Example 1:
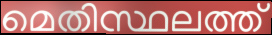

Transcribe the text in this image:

മെതിസ്ഥലത്ത്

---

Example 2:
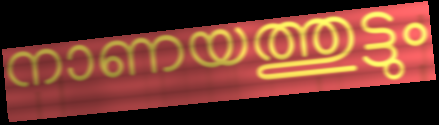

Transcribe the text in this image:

നാണയത്തുട്ടും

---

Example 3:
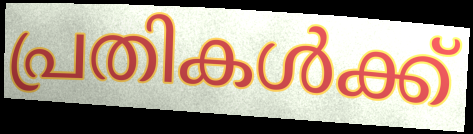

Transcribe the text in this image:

പ്രതികൾക്ക്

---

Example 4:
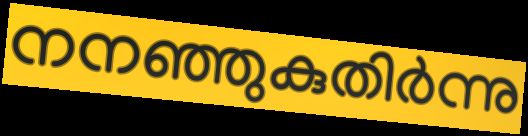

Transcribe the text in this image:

നനഞ്ഞുകുതിർന്നു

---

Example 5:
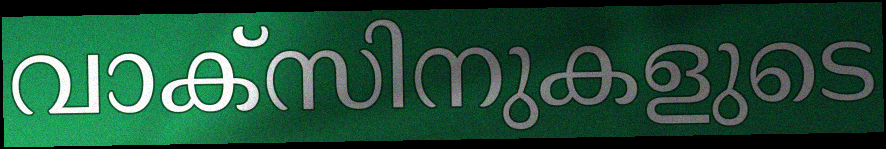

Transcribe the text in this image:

വാക്സിനുകളുടെ